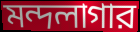
মন্দলাগার